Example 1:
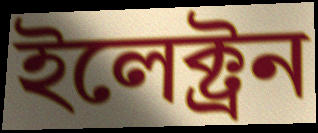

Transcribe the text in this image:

ইলেক্ট্রন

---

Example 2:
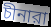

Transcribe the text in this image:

চীনারা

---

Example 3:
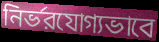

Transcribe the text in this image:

নির্ভরযোগ্যভাবে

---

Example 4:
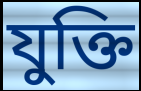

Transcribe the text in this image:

যুক্তি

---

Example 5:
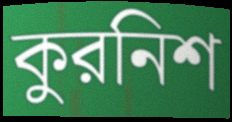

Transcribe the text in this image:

কুরনিশ